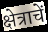
क्षेत्राचें